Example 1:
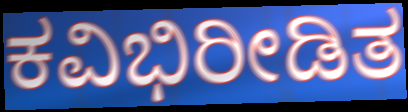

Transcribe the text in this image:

ಕವಿಭಿರೀಡಿತ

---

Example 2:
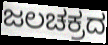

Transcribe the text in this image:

ಜಲಚಕ್ರದ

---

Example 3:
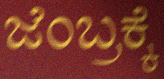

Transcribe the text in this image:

ಜೆಂಬ್ರಕ್ಕೆ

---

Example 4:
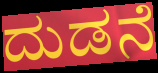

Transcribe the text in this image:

ದುಡನೆ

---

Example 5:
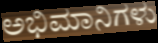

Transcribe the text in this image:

ಅಭಿಮಾನಿಗಳು